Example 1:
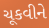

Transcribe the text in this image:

ચૂકવીને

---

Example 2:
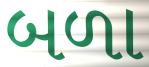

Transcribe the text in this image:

બળા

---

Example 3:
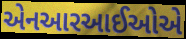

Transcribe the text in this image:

એનઆરઆઈઓએ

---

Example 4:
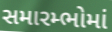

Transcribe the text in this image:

સમારમ્ભોમાં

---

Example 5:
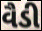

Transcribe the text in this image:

વૈડી